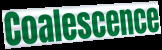
Coalescence